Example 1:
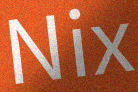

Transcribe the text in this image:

Nix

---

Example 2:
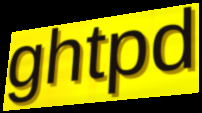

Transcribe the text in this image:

ghtpd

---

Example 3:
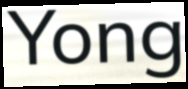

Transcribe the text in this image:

Yong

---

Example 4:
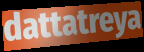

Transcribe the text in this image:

dattatreya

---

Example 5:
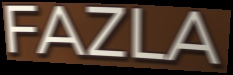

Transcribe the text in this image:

FAZLA